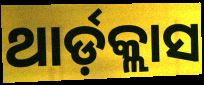
ଥାର୍ଡ଼କ୍ଲାସ